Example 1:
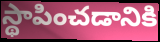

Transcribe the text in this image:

స్థాపించడానికి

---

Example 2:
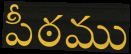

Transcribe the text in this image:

పీఠము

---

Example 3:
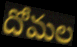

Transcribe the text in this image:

దోమల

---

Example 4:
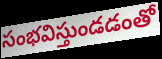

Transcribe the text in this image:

సంభవిస్తుండడంతో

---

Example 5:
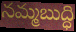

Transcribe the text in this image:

నమ్మబుద్ధి